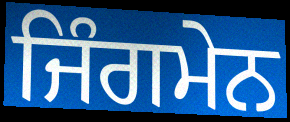
ਜਿੰਗਮੇਨ